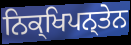
ਨਿਕ੍ਖਿਪਨ੍ਤੇਨ